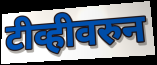
टीव्हीवरुन